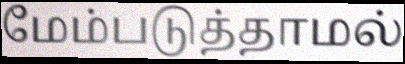
மேம்படுத்தாமல்